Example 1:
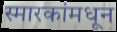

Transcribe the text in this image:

स्मारकांमधून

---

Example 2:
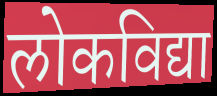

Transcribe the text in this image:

लोकविद्या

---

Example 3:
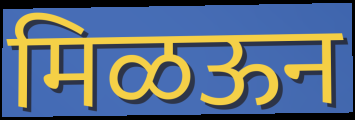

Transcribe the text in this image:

मिळऊन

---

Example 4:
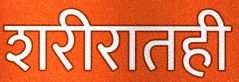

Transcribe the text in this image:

शरीरातही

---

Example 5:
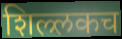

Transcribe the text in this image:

शिल्लकच